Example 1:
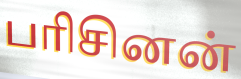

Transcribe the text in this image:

பரிசினன்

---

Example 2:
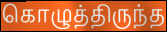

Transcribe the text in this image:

கொழுத்திருந்த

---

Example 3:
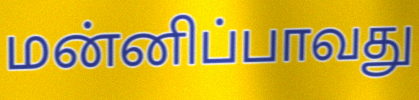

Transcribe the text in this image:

மன்னிப்பாவது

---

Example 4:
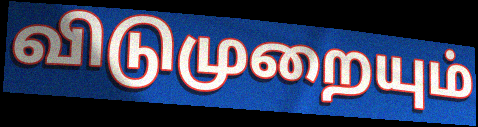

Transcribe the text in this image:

விடுமுறையும்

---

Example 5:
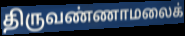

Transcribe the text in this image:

திருவண்ணாமலைக்